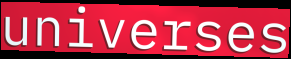
universes